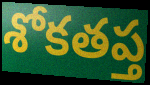
శోకతప్త